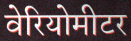
वेरियोमीटर